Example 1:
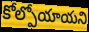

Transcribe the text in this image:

కోల్పోయాయని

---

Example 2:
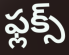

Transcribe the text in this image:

ఫ్లక్స్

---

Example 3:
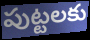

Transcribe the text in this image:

పుట్టలకు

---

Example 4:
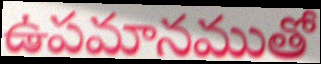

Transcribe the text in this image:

ఉపమానముతో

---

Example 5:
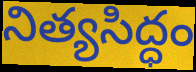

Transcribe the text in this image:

నిత్యసిద్ధం